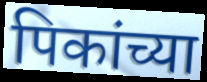
पिकांच्या